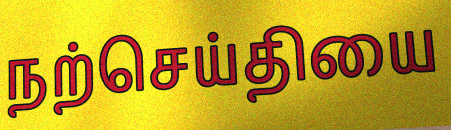
நற்செய்தியை